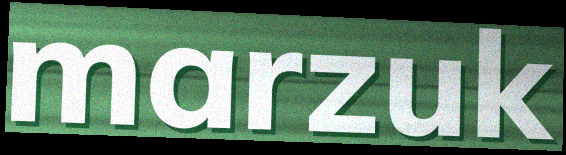
marzuk